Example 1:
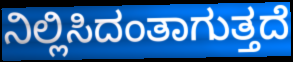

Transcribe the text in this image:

ನಿಲ್ಲಿಸಿದಂತಾಗುತ್ತದೆ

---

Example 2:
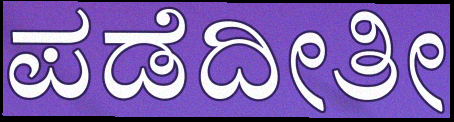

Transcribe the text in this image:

ಪಡೆದೀತೀ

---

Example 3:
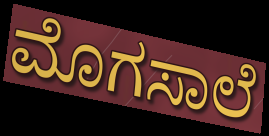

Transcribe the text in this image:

ಮೊಗಸಾಲೆ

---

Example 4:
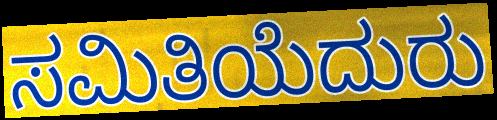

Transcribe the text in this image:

ಸಮಿತಿಯೆದುರು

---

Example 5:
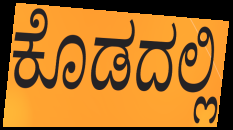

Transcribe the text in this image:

ಕೊಡದಲ್ಲಿ